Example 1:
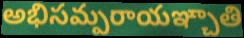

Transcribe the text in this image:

అభిసమ్పరాయఞ్చాతి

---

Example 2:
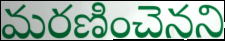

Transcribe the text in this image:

మరణించెనని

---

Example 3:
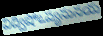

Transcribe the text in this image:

విద్విషోఽప్యనునయ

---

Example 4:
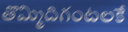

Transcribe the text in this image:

తొమ్మిదిగంటలకే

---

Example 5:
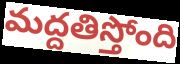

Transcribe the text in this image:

మద్దతిస్తోంది